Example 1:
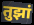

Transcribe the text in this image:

तुझां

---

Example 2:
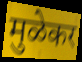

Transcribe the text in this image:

मुळेकर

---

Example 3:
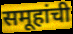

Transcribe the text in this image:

समूहांची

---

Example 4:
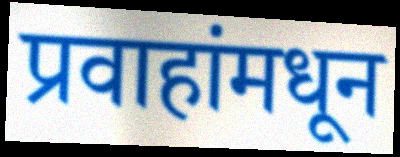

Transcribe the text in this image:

प्रवाहांमधून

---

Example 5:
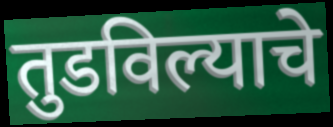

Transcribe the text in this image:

तुडविल्याचे